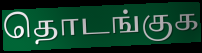
தொடங்குக